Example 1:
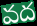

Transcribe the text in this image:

వద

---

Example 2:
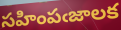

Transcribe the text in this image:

సహింపఁజాలక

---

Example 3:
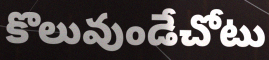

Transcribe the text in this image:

కొలువుండేచోటు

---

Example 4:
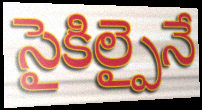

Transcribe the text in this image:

సైకిల్పైనే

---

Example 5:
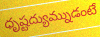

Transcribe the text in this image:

ధృష్టద్యుమ్నుడంటే